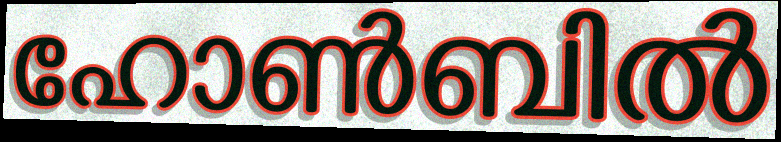
ഹോൺബിൽ